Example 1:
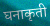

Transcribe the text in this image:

घनाकृती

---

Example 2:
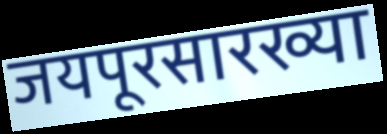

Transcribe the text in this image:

जयपूरसारख्या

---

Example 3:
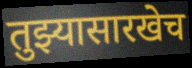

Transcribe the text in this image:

तुझ्यासारखेच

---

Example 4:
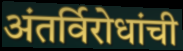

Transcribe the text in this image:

अंतर्विरोधांची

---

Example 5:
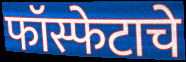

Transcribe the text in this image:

फॉस्फेटाचे